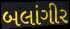
બલાંગીર